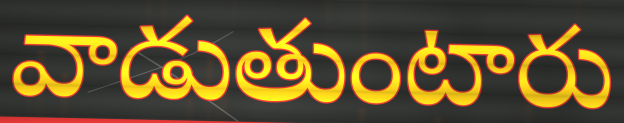
వాడుతుంటారు